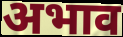
अभाव